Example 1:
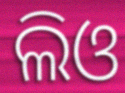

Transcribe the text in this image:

ଲିଓ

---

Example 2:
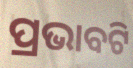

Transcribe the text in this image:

ପ୍ରଭାବଟି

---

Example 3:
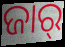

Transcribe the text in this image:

ଜାର୍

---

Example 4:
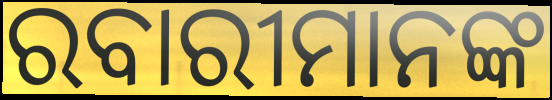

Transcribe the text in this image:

ରବାରୀମାନଙ୍କ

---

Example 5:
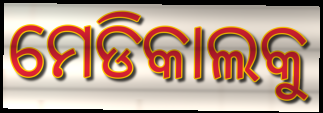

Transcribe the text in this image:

ମେଡିକାଲକୁ